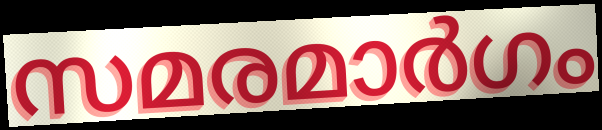
സമരമാർഗം